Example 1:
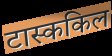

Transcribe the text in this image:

टास्ककिल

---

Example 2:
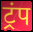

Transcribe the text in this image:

ट्रंप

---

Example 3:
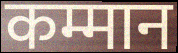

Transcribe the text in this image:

कम्मान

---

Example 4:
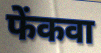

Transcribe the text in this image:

फेंकवा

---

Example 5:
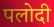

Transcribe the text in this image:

पलोदी